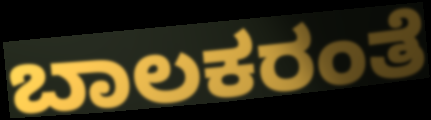
ಬಾಲಕರಂತೆ